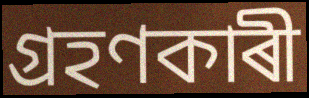
গ্ৰহণকাৰী